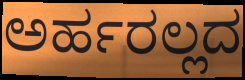
ಅರ್ಹರಲ್ಲದ